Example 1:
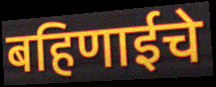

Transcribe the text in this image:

बहिणाईचे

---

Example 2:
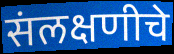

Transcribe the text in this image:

संलक्षणीचे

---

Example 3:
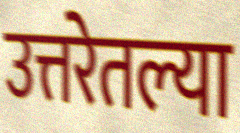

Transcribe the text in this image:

उत्तरेतल्या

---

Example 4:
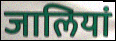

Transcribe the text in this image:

जालियां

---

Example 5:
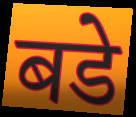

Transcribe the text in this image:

बडे